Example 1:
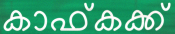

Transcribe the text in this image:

കാഫ്കക്ക്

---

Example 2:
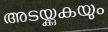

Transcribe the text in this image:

അടയ്ക്കുകയും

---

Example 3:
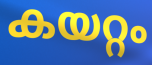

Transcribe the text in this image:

കയറ്റം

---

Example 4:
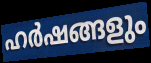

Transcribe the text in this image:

ഹർഷങ്ങളും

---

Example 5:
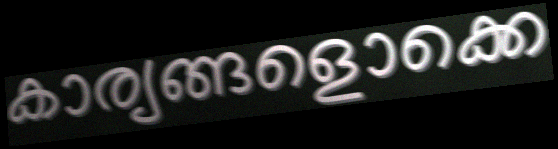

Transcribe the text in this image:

കാര്യങ്ങളൊക്കെ